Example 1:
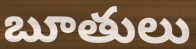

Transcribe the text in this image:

బూతులు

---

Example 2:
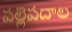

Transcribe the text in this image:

పల్లెపదాల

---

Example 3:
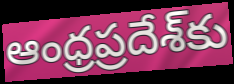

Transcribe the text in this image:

ఆంధ్రప్రదేశ్‌కు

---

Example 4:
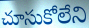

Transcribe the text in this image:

చూసుకోలేని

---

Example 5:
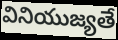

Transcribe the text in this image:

వినియుజ్యతే